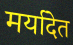
मर्यादेत